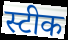
स्टीक